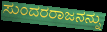
ಸುಂದರರಾಜನನ್ನು